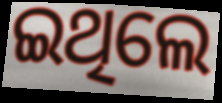
ଇଥିଲେ